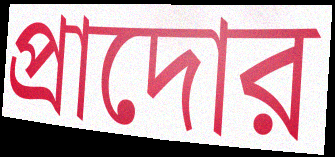
প্রাদোর